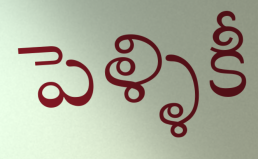
పెళ్ళికీ